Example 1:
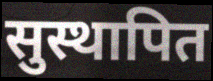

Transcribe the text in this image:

सुस्थापित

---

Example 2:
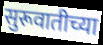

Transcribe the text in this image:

सुरूवातीच्या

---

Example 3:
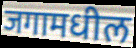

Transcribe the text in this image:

जगामधील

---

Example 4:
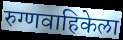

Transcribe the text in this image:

रुग्णवाहिकेला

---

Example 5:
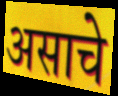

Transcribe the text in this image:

असाचे